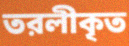
তরলীকৃত